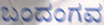
ಬಂದಂಗವ